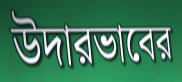
উদারভাবের